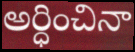
అర్ధించినా